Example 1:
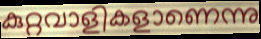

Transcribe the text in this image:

കുറ്റവാളികളാണെന്നു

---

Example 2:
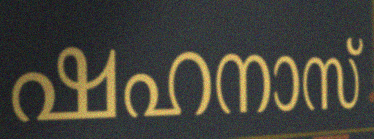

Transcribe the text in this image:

ഷഹനാസ്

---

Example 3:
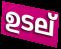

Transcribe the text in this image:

ഉടല്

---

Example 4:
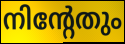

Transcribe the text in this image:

നിന്റേതും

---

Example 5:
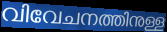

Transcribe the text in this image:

വിവേചനത്തിനുള്ള